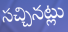
సచ్చినట్లు